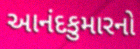
આનંદકુમારનો